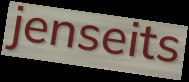
jenseits